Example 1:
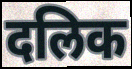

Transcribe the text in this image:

दलिक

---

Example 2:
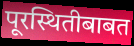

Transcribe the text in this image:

पूरस्थितीबाबत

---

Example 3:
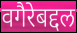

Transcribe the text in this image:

वगैरेबद्दल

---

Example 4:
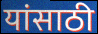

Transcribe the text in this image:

यांसाठी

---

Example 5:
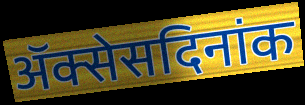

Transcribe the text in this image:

ॲक्सेसदिनांक